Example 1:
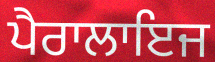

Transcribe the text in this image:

ਪੈਰਾਲਾਇਜ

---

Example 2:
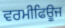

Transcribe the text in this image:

ਵਰਮੀਫਿਊਜ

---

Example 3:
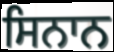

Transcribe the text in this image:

ਸਿਨਾਨ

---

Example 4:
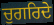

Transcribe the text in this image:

ਚੁਗਰਿਦੇ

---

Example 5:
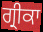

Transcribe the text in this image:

ਗ੍ਰੀਕਾ